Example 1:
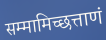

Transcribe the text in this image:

सम्मामिच्छत्ताणं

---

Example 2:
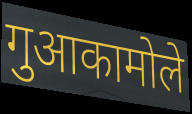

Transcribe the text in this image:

गुआकामोले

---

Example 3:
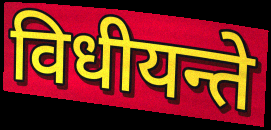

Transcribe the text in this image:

विधीयन्ते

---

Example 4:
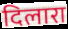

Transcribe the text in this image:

दिलारा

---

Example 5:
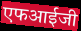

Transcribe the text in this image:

एफआईजी